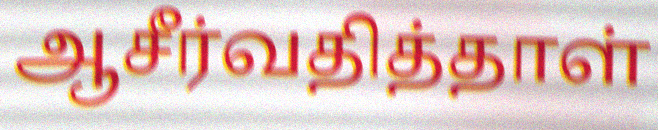
ஆசீர்வதித்தாள்